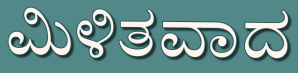
ಮಿಳಿತವಾದ